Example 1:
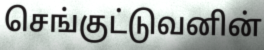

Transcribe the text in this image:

செங்குட்டுவனின்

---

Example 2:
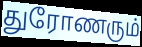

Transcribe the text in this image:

துரோணரும்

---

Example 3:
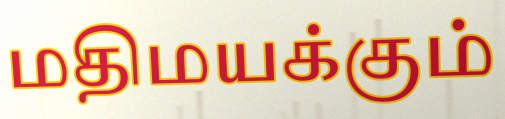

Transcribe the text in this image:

மதிமயக்கும்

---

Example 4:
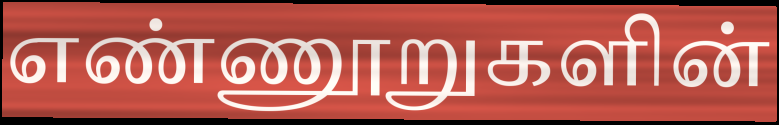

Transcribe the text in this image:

எண்ணூறுகளின்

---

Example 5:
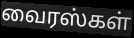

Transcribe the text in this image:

வைரஸ்கள்